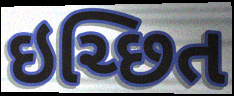
ઇચ્છિત